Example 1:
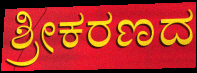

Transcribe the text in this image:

ಶ್ರೀಕರಣದ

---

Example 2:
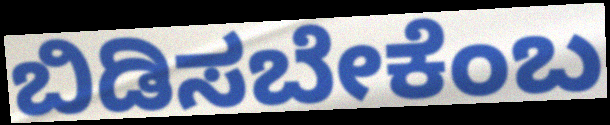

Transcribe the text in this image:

ಬಿಡಿಸಬೇಕೆಂಬ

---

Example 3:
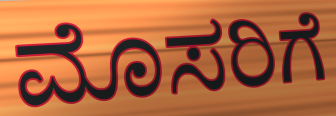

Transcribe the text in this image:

ಮೊಸರಿಗೆ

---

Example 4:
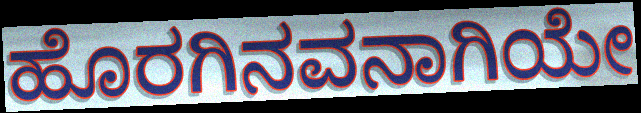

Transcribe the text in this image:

ಹೊರಗಿನವನಾಗಿಯೇ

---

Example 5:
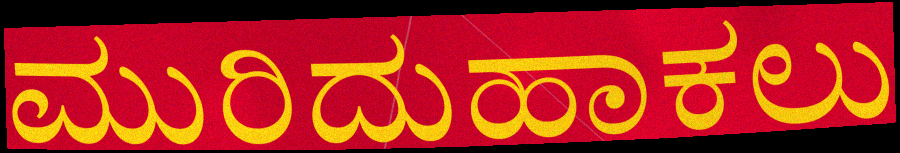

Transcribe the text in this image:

ಮುರಿದುಹಾಕಲು